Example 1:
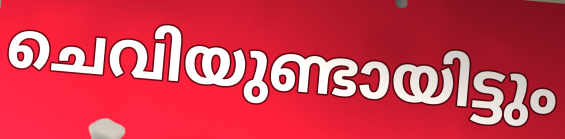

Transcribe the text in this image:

ചെവിയുണ്ടായിട്ടും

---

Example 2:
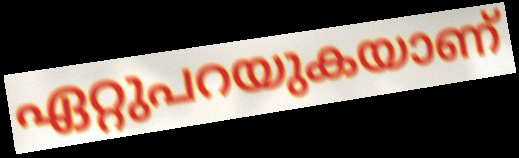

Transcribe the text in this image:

ഏറ്റുപറയുകയാണ്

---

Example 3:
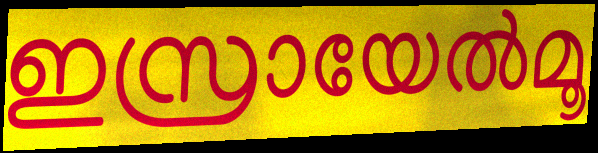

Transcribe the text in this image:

ഇസ്രായേൽമൂ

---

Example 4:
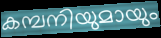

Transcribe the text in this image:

കമ്പനിയുമായും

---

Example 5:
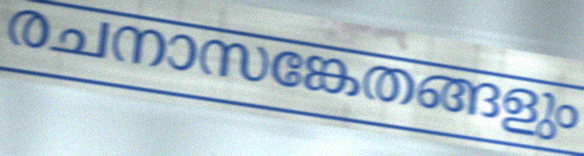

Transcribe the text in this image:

രചനാസങ്കേതങ്ങളും